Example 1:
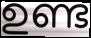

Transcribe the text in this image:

ഉണ്ട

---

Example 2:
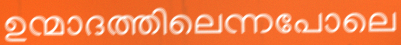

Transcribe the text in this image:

ഉന്മാദത്തിലെന്നപോലെ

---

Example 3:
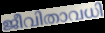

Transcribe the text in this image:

ജീവിതാവധി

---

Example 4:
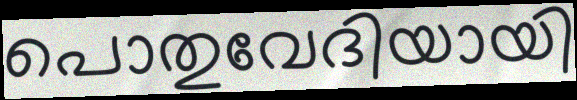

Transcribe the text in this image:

പൊതുവേദിയായി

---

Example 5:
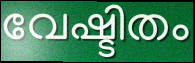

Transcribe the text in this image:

വേഷ്ടിതം